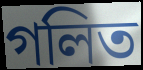
গলিত